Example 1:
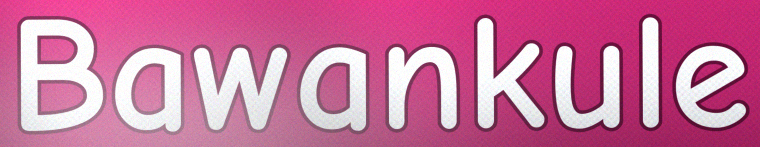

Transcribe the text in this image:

Bawankule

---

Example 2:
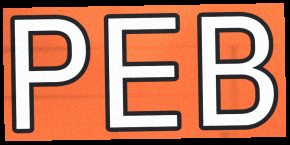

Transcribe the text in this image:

PEB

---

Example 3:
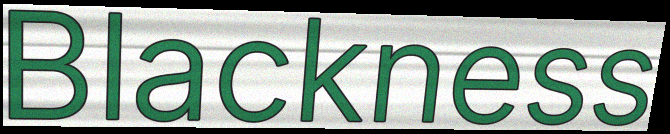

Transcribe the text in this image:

Blackness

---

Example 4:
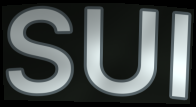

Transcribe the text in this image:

SUI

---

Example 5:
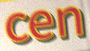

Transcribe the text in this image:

cen